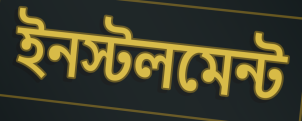
ইনস্টলমেন্ট